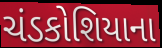
ચંડકોશિયાના